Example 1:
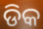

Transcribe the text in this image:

ଡିକ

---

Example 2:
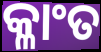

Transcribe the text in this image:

କ୍ଳାଂତ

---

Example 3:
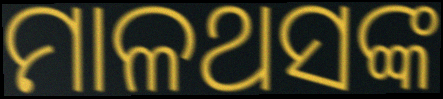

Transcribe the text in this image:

ମାଳଥସଙ୍କ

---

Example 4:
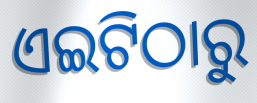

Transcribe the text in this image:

ଏଇଟିଠାରୁ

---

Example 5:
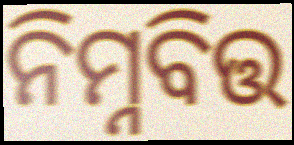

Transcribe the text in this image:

ନିମ୍ନବିତ୍ତ